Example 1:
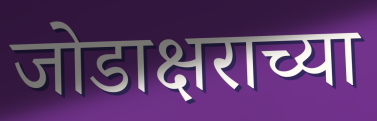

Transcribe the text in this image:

जोडाक्षराच्या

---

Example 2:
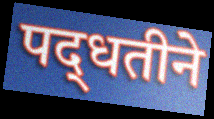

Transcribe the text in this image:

पद्‍धतीने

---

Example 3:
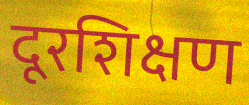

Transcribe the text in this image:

दूरशिक्षण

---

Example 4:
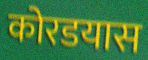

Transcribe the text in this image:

कोरडयास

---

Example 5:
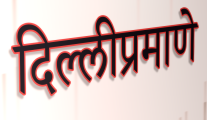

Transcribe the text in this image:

दिल्लीप्रमाणे